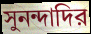
সুনন্দাদির